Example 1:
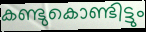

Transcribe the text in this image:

കണ്ടുകൊണ്ടിട്ടും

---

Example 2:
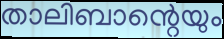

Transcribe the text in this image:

താലിബാന്റെയും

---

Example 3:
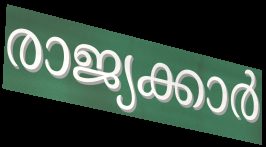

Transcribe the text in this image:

രാജ്യക്കാർ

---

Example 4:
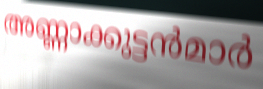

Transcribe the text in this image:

അണ്ണാക്കുട്ടൻമാർ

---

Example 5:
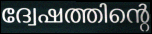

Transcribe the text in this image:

ദ്വേഷത്തിന്റെ